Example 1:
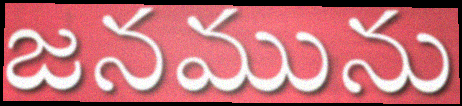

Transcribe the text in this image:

జనమును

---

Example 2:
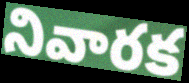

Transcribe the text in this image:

నివారక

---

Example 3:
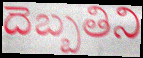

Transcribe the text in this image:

దెబ్బతిని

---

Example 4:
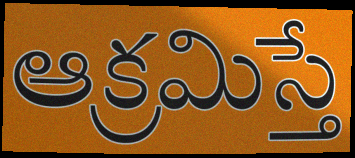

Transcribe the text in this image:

ఆక్రమిస్తే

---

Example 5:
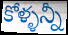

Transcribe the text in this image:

కోళ్ళన్నీ